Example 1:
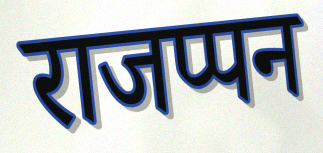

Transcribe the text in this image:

राजप्पन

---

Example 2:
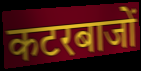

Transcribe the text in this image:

कटरबाजों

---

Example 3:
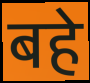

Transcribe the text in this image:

बहे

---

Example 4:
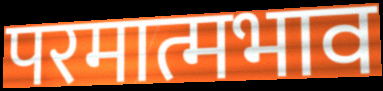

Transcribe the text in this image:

परमात्मभाव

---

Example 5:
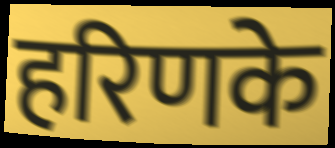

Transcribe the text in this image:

हरिणके